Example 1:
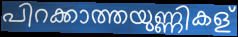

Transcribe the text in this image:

പിറക്കാത്തയുണ്ണികള്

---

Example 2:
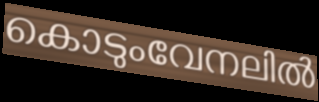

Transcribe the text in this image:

കൊടുംവേനലിൽ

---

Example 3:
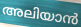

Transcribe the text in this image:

അലിയാൻ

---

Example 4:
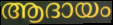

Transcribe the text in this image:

ആദായം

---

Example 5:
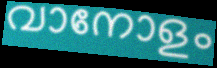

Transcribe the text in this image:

വാനോളം